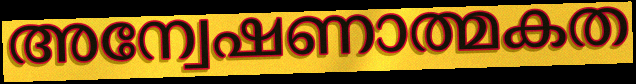
അന്വേഷണാത്മകത